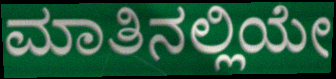
ಮಾತಿನಲ್ಲಿಯೇ